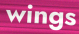
wings